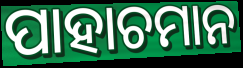
ପାହାଚମାନ